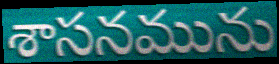
శాసనమును